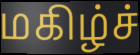
மகிழ்ச்